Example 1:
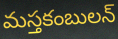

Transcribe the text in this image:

మస్తకంబులన్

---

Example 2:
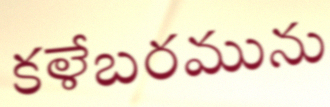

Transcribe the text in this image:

కళేబరమును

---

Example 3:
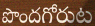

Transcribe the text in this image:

పొందగోరుట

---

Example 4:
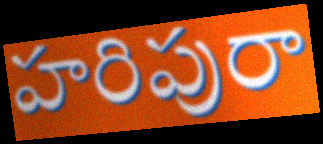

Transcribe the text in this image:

హరిపురా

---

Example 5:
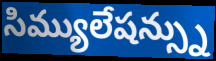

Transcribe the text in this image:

సిమ్యులేషన్స్ను